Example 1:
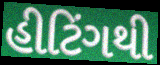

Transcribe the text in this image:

હીટિંગથી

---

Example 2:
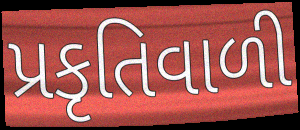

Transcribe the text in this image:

પ્રકૃતિવાળી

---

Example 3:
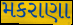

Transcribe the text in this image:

મકરાણા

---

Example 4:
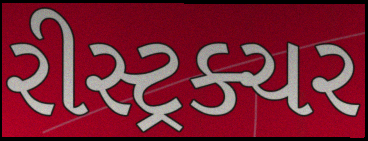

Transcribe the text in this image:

રીસ્ટ્રક્ચર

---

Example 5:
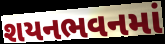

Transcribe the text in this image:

શયનભવનમાં